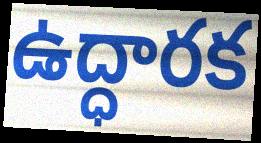
ఉద్ధారక